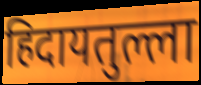
हिदायतुल्ला